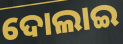
ଦୋଲାଇ